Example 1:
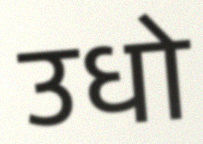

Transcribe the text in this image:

उधो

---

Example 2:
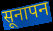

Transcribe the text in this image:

सूनापन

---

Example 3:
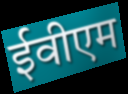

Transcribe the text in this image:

ईवीएम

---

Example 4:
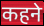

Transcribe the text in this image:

कहने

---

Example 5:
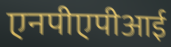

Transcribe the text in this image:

एनपीएपीआई